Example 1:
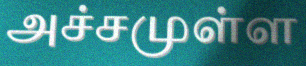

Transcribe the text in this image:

அச்சமுள்ள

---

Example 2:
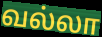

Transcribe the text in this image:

வல்லா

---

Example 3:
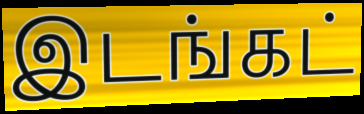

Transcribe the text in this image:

இடங்கட்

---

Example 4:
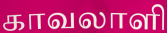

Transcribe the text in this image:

காவலாளி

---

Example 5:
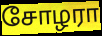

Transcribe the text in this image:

சோழரா